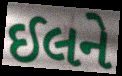
ઈલને